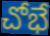
చోభే